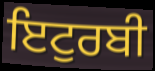
ਇਟੁਰਬੀ